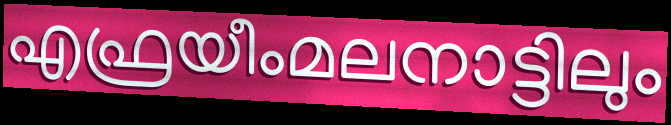
എഫ്രയീംമലനാട്ടിലും